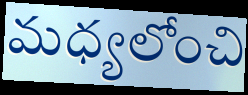
మధ్యలోంచి